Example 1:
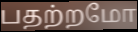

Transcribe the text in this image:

பதற்றமோ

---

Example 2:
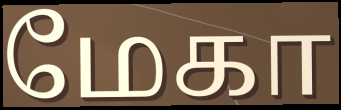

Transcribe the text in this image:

மேகா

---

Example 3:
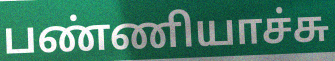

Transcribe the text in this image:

பண்ணியாச்சு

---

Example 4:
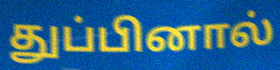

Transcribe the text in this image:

துப்பினால்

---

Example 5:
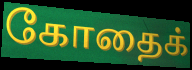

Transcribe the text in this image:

கோதைக்